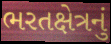
ભરતક્ષેત્રનું